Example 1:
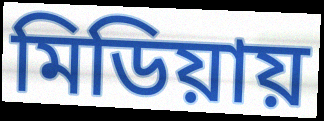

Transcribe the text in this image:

মিডিয়ায়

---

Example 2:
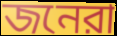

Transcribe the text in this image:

জনেরা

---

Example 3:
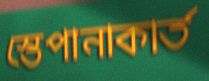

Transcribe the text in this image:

স্তেপানাকার্ত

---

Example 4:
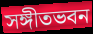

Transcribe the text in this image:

সঙ্গীতভবন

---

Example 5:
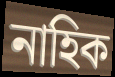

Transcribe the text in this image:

নাহিক